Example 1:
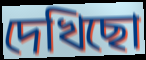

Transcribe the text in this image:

দেখিছো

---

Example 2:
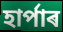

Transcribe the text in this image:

হাৰ্পাৰ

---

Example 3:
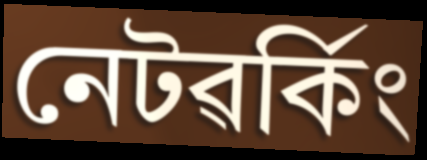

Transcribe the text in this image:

নেটৱৰ্কিং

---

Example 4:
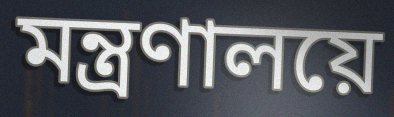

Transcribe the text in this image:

মন্ত্ৰণালয়ে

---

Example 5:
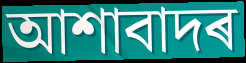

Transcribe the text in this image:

আশাবাদৰ